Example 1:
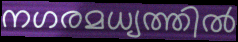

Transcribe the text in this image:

നഗരമധ്യത്തിൽ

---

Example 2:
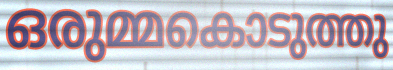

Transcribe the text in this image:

ഒരുമ്മകൊടുത്തു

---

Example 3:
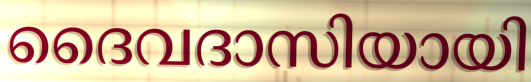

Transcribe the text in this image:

ദൈവദാസിയായി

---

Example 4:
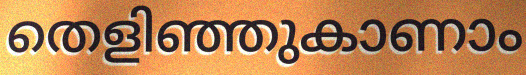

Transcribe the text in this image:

തെളിഞ്ഞുകാണാം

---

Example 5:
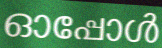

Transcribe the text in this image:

ഓപ്പോൾ